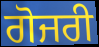
ਗੋਜਰੀ